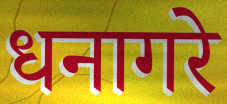
धनागरे